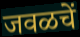
जवळचें